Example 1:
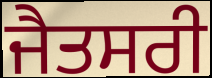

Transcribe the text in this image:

ਜੈਤਸਰੀ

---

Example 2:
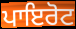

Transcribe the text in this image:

ਪਾਇਰੋਟ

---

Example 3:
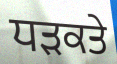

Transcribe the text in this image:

ਧੜਕਤੇ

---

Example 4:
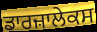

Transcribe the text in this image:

ਡਾਰਜ਼ਾਲੇਕਸ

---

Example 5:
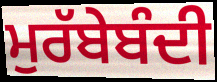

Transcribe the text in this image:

ਮੁਰੱਬੇਬੰਦੀ